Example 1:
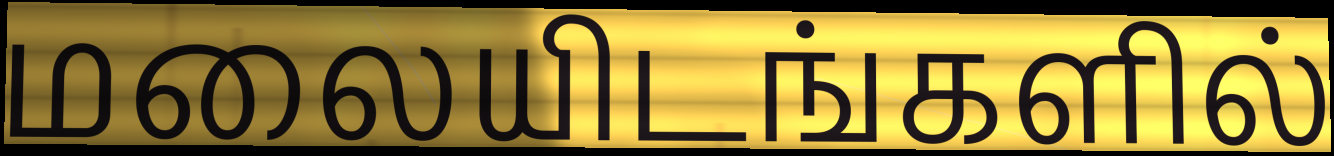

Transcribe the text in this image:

மலையிடங்களில்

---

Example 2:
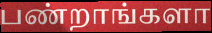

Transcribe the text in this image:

பண்றாங்களா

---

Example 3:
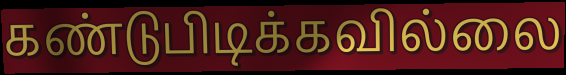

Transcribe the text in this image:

கண்டுபிடிக்கவில்லை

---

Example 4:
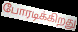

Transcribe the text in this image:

போரடிக்கிறது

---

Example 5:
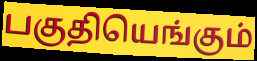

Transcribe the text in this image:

பகுதியெங்கும்